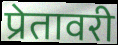
प्रेतावरी